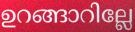
ഉറങ്ങാറില്ലേ